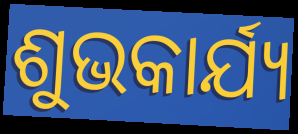
ଶୁଭକାର୍ଯ୍ୟ